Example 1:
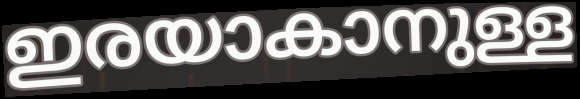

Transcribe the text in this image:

ഇരയാകാനുള്ള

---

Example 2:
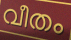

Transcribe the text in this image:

വീതം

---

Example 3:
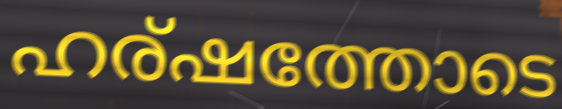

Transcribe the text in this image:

ഹര്ഷത്തോടെ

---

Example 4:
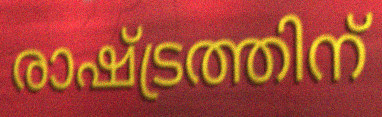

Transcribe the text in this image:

രാഷ്ട്രത്തിന്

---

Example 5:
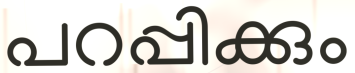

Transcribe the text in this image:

പറപ്പിക്കും